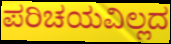
ಪರಿಚಯವಿಲ್ಲದ